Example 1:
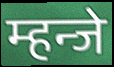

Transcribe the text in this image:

म्हन्जे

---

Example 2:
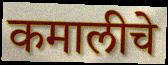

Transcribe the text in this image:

कमालीचे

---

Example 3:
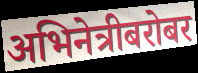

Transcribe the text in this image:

अभिनेत्रीबरोबर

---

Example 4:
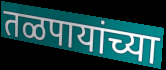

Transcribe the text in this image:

तळपायांच्या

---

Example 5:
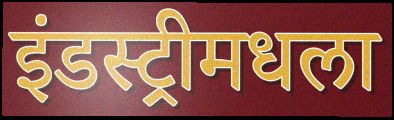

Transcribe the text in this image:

इंडस्ट्रीमधला